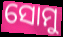
ସୋମୁ